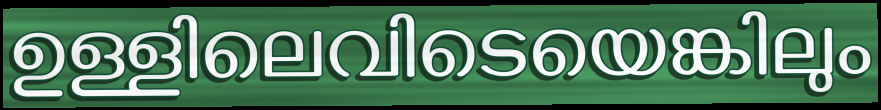
ഉള്ളിലെവിടെയെങ്കിലും